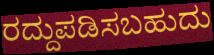
ರದ್ದುಪಡಿಸಬಹುದು